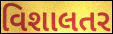
વિશાલતર